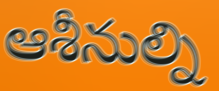
ఆశీనుల్ని